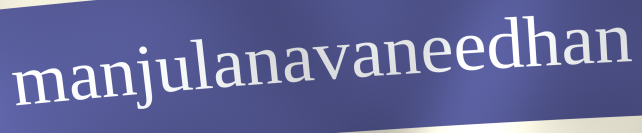
manjulanavaneedhan